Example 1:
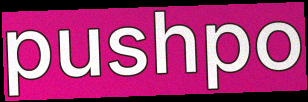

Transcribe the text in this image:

pushpo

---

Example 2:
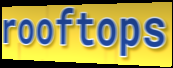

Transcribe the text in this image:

rooftops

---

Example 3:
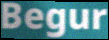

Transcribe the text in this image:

Begur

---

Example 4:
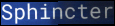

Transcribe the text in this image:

Sphincter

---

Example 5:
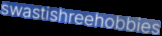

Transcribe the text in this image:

swastishreehobbies